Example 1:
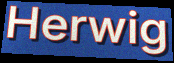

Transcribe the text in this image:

Herwig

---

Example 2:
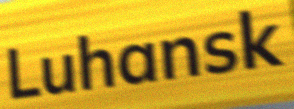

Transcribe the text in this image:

Luhansk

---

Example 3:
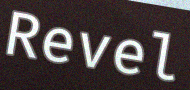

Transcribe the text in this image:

Revel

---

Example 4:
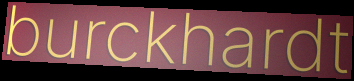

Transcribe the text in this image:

burckhardt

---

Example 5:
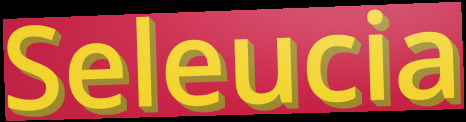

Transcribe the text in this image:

Seleucia